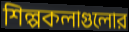
শিল্পকলাগুলোর